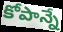
కోపాన్నే